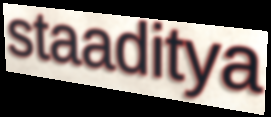
staaditya